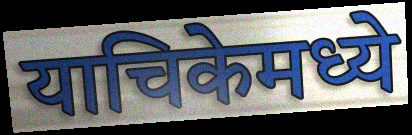
याचिकेमध्ये